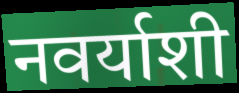
नवर्याशी